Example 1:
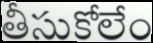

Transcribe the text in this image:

తీసుకోలేం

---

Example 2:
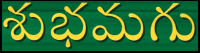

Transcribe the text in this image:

శుభమగు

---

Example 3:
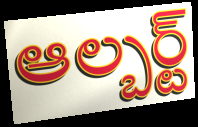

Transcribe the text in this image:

ఆల్బర్ట్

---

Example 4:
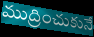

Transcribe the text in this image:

ముద్రించుకునే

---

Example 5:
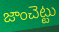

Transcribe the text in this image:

జాంచెట్టు